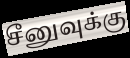
சீனுவுக்கு